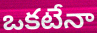
ఒకటేనా